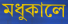
মধুকালে